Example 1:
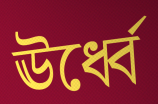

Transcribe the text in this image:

ঊর্ধ্বে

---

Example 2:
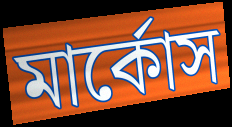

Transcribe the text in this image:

মার্কোস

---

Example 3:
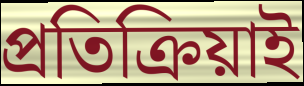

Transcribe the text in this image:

প্রতিক্রিয়াই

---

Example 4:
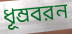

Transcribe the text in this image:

ধূম্রবরন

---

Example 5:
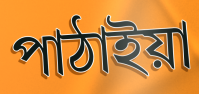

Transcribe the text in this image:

পাঠাইয়া